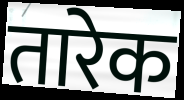
तारेक